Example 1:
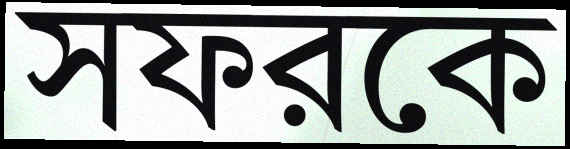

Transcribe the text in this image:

সফরকে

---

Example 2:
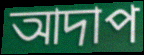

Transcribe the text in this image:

আদাপ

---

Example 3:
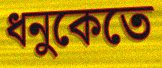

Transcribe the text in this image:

ধনুকেতে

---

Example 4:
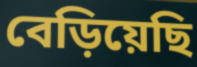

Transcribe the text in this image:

বেড়িয়েছি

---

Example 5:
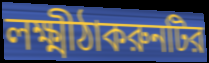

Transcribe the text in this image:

লক্ষ্মীঠাকরুনটির